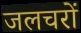
जलचरों